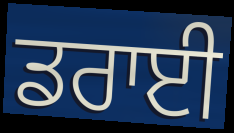
ਡਰਾਈ